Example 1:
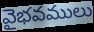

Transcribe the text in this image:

వైభవములు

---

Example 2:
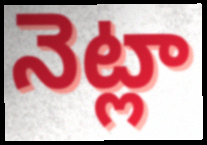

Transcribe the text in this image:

నెట్లా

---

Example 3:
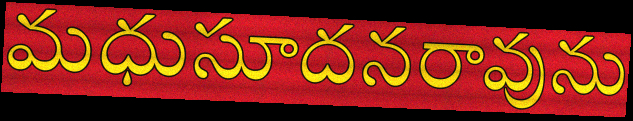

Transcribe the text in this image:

మధుసూదనరావును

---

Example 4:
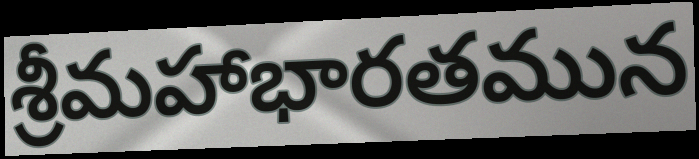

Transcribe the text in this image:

శ్రీమహాభారతమున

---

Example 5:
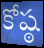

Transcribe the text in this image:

కోష్ఠ